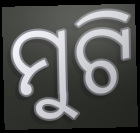
ମୁଟି